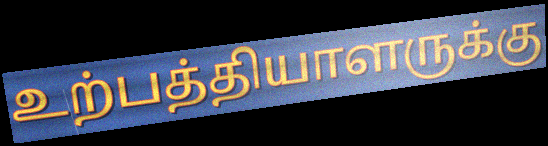
உற்பத்தியாளருக்கு